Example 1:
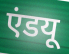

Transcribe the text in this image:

एंडयू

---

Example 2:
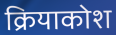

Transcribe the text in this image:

क्रियाकोश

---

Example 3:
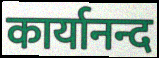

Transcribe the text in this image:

कार्यानन्द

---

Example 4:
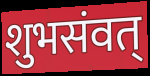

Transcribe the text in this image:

शुभसंवत्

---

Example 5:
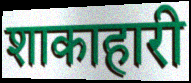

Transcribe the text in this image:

शाकाहारी